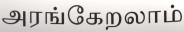
அரங்கேறலாம்